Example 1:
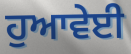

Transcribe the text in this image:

ਹੁਆਵੇਈ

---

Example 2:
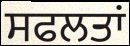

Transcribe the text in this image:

ਸਫਲਤਾਂ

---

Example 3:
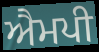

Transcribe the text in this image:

ਐਮਪੀ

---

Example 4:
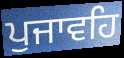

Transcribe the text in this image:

ਪੁਜਾਵਹਿ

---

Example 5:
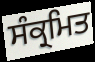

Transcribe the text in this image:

ਸੰਕ੍ਰਮਿਤ